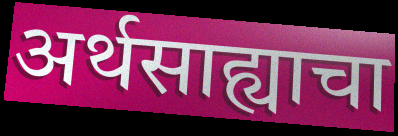
अर्थसाह्याचा